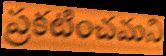
ప్రకటించమని